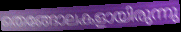
തെങ്ങോലകളായിരുന്നു